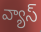
వ్యాస్